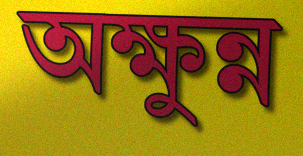
অক্ষুন্ন